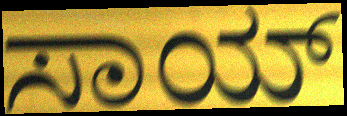
ಸಾಯ್